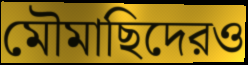
মৌমাছিদেরও